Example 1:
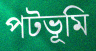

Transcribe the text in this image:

পটভূমি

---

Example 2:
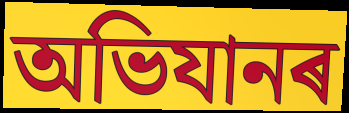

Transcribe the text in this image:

অভিযানৰ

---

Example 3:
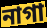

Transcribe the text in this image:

নাগা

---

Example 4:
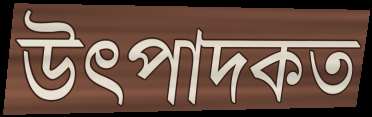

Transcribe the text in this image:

উৎপাদকত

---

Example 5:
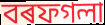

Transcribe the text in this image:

বৰফগলা